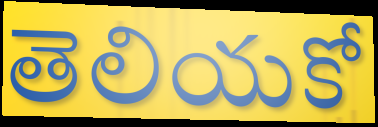
తెలియకో